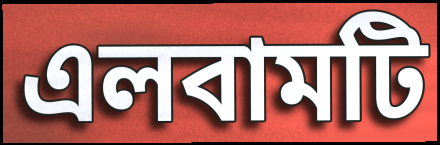
এলবামটি